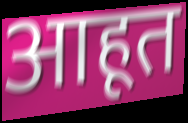
आहूत